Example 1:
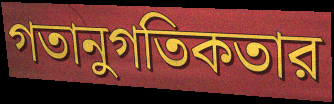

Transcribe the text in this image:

গতানুগতিকতার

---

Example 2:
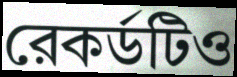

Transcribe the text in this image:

রেকর্ডটিও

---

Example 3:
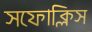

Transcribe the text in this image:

সফোক্লিস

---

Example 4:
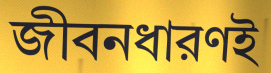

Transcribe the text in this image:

জীবনধারণই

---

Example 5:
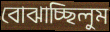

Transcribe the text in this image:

বোঝাচ্ছিলুম